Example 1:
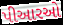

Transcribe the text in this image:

પીઆરઓ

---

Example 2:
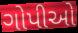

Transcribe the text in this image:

ગોપીઓ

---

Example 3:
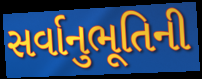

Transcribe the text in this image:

સર્વાનુભૂતિની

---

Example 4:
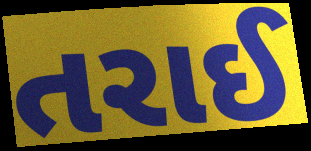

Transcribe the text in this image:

તરાઈ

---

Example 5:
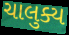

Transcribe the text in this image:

ચાલુક્ય